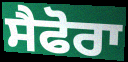
ਸੈਫੋਰਾ